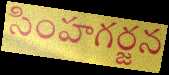
సింహగర్జన